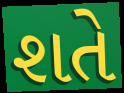
શતે